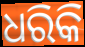
ଧରିକି